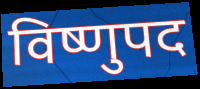
विष्णुपद